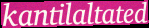
kantilaltated